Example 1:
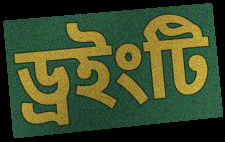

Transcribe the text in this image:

ড্রইংটি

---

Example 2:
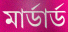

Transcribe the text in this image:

মার্ডার্ড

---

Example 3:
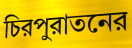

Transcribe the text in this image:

চিরপুরাতনের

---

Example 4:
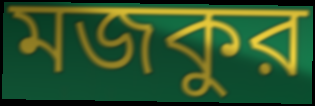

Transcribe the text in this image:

মজকুর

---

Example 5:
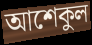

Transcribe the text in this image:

আশেকুল